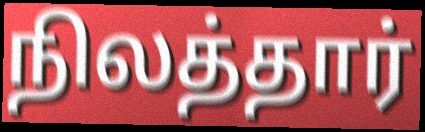
நிலத்தார்